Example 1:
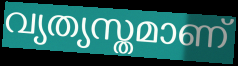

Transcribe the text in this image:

വ്യത്യസ്തമാണ്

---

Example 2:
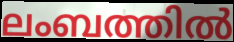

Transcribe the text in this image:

ലംബത്തിൽ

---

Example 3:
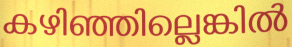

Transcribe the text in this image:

കഴിഞ്ഞില്ലെങ്കിൽ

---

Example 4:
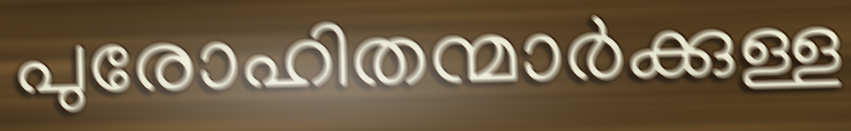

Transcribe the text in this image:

പുരോഹിതന്മാർക്കുള്ള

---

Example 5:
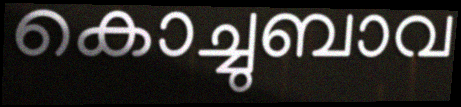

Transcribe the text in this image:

കൊച്ചുബാവ